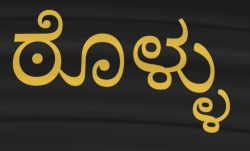
ಠೊಳ್ಳು